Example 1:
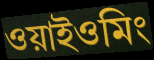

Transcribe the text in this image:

ওয়াইওমিং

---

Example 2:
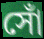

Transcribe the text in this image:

সোঁ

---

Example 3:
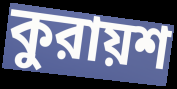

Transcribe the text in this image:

কুরায়শ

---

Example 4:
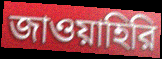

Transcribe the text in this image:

জাওয়াহিরি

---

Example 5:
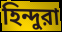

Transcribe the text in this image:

হিন্দুরা